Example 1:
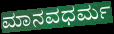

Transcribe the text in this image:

ಮಾನವಧರ್ಮ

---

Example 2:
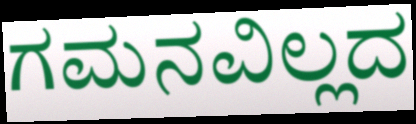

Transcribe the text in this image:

ಗಮನವಿಲ್ಲದ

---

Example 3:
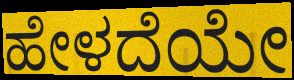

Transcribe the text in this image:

ಹೇಳದೆಯೇ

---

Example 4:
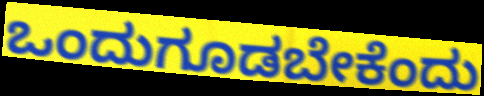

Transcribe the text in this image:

ಒಂದುಗೂಡಬೇಕೆಂದು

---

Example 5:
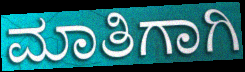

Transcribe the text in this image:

ಮಾತಿಗಾಗಿ